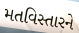
મતવિસ્તારને